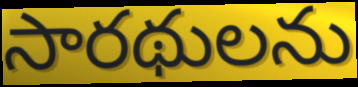
సారథులను